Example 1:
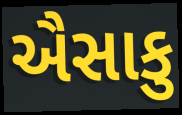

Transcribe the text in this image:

ઐસાકુ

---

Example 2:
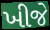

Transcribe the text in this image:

ખીજે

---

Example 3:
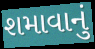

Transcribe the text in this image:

શમાવાનું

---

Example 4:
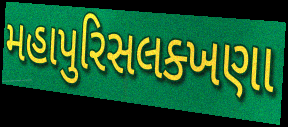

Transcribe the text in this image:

મહાપુરિસલક્ખણા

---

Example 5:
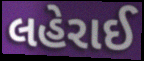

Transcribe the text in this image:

લહેરાઈ